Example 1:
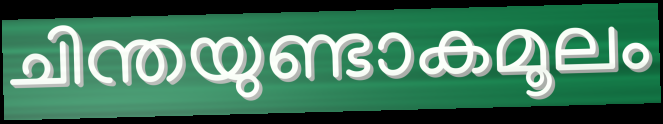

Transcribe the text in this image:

ചിന്തയുണ്ടാകമൂലം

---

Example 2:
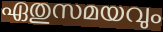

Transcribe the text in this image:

ഏതുസമയവും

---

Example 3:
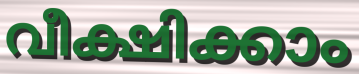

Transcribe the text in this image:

വീക്ഷിക്കാം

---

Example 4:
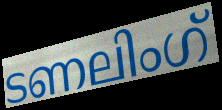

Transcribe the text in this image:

ടണലിംഗ്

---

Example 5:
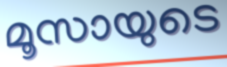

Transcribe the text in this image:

മൂസായുടെ